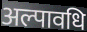
अल्पावधि